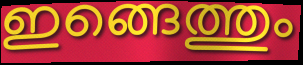
ഇങ്ങെത്തും